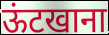
ऊंटखाना